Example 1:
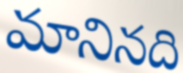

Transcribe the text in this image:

మానినది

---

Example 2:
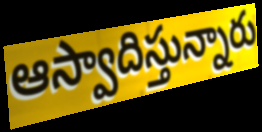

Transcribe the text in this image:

ఆస్వాదిస్తున్నారు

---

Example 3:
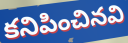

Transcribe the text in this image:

కనిపించినవి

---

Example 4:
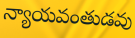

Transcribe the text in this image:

న్యాయవంతుడవు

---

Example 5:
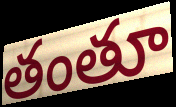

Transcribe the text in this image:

తంతూ